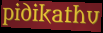
pidikathu